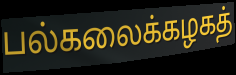
பல்கலைக்கழகத்